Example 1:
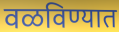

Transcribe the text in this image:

वळविण्यात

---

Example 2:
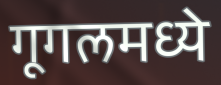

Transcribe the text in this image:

गूगलमध्ये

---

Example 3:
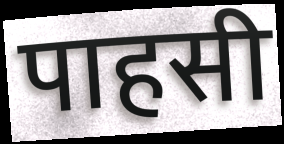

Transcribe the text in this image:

पाहसी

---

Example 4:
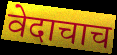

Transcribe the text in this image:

वेदाचाच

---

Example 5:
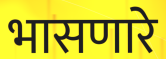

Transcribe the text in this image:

भासणारे